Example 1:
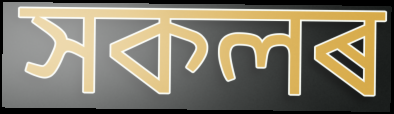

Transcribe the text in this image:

সকলৰ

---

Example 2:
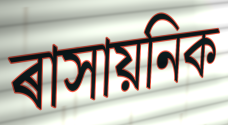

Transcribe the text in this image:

ৰাসায়নিক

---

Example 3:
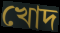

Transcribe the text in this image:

খোদ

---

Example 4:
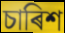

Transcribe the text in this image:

চাৰিশ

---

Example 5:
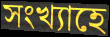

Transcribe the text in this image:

সংখ্যাহে